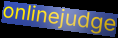
onlinejudge